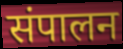
संपालन